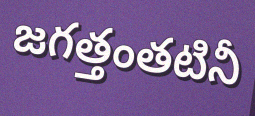
జగత్తంతటినీ